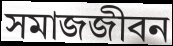
সমাজজীবন